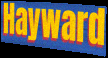
Hayward